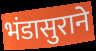
भंडासुराने